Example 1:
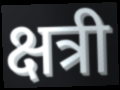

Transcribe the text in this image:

क्षत्री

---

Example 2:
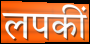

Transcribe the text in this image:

लपकीं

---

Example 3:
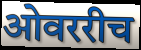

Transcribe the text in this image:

ओवररीच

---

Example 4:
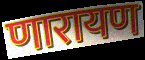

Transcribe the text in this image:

णारायण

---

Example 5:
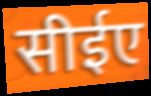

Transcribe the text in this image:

सीईए